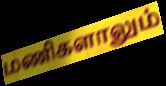
மணிகளாலும்